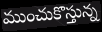
ముంచుకొస్తున్న